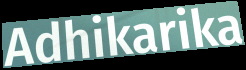
Adhikarika